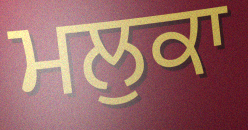
ਮਲੁਕਾ